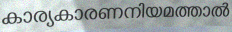
കാര്യകാരണനിയമത്താൽ